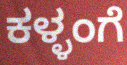
ಕಳ್ಳಂಗೆ